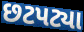
છટપટ્યા